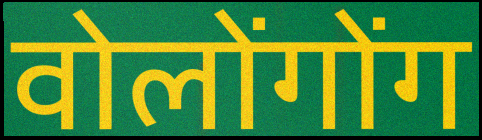
वोलोंगोंग